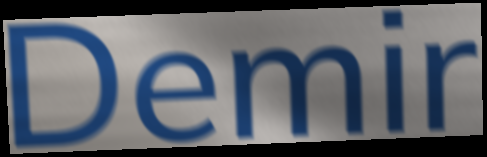
Demir